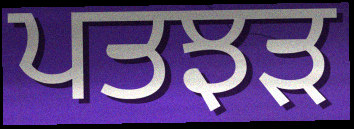
ਪਤਝਡ਼